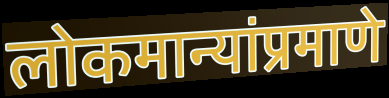
लोकमान्यांप्रमाणे